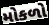
મોકળો